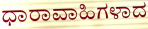
ಧಾರಾವಾಹಿಗಳಾದ